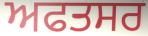
ਅਫਤਸਰ